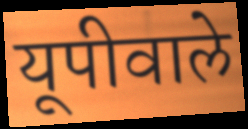
यूपीवाले